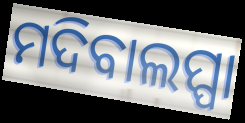
ମଦିବାଲପ୍ପା